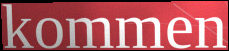
kommen